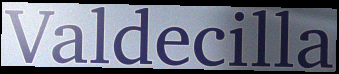
Valdecilla